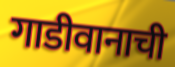
गाडीवानाची